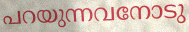
പറയുന്നവനോടു